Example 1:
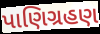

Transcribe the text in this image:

પાણિગ્રહણ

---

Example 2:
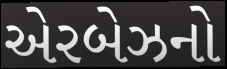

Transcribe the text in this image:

એરબેઝનો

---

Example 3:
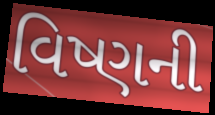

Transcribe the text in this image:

વિષ્ણની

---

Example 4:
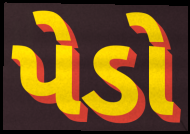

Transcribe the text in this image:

પેડો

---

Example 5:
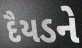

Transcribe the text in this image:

દૈયડને